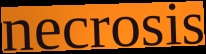
necrosis